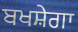
ਬਖਸ਼ੇਗਾ